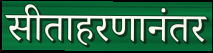
सीताहरणानंतर